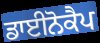
ਡਾਈਨੋਕੈਪ